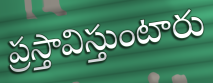
ప్రస్తావిస్తుంటారు